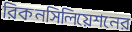
রিকনসিলিয়েশনের